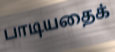
பாடியதைக்